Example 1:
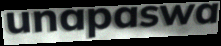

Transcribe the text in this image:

unapaswa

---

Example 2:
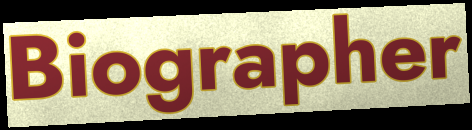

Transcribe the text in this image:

Biographer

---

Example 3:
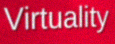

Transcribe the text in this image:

Virtuality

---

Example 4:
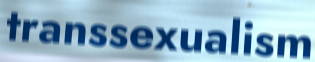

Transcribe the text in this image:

transsexualism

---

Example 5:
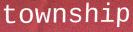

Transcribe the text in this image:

township